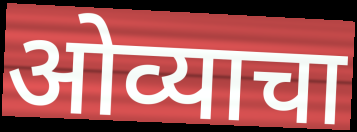
ओव्याचा